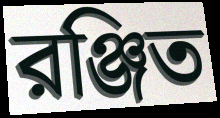
রঞ্জিত